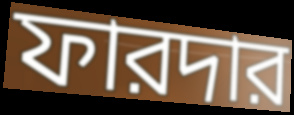
ফারদার